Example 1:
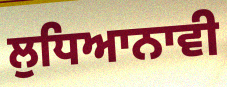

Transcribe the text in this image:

ਲੁਧਿਆਨਾਵੀ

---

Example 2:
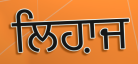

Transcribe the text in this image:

ਲਿਹ਼ਾਜ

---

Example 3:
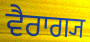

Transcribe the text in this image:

ਵੈਰਾਗ੍ਯ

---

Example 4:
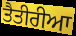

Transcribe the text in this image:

ਤੈਤੀਰੀਆ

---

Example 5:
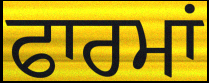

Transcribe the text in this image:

ਫਾਰਮਾਂ